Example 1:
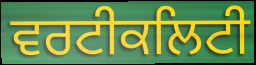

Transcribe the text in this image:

ਵਰਟੀਕਲਿਟੀ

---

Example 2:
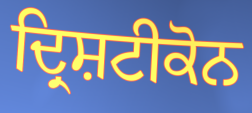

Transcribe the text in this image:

ਦ੍ਰਿਸ਼ਟੀਕੋਨ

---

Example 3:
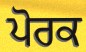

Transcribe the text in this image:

ਪੋਰਕ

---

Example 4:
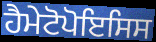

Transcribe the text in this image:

ਹੈਮੇਟੋਪੋਇਸਿਸ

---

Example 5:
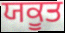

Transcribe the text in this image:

ਯਕੂਤ